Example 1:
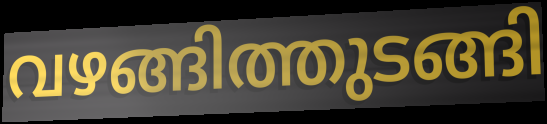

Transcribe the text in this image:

വഴങ്ങിത്തുടങ്ങി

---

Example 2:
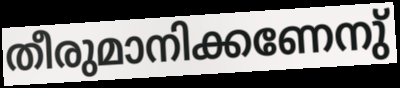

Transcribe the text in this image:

തീരുമാനിക്കണേനു്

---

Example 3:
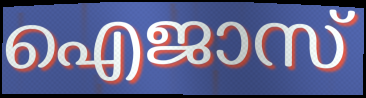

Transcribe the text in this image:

ഐജാസ്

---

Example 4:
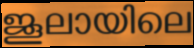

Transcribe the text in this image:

ജൂലായിലെ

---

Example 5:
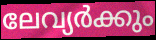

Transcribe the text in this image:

ലേവ്യർക്കും